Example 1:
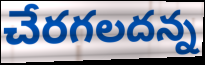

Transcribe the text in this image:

చేరగలదన్న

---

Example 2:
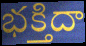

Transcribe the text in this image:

భక్తిదా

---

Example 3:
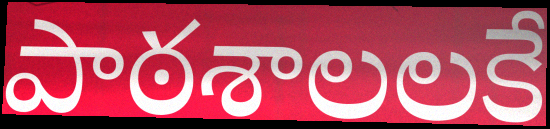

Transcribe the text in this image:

పాఠశాలలకే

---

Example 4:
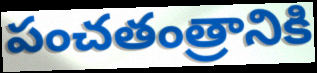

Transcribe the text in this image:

పంచతంత్రానికి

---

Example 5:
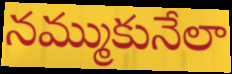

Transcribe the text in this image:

నమ్ముకునేలా